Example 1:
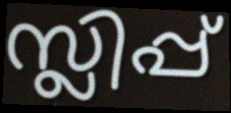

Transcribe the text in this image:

സ്ലിപ്പ്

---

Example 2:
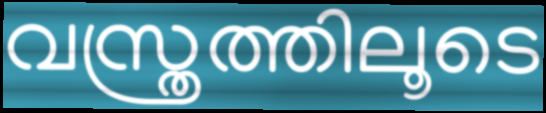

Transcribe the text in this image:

വസ്ത്രത്തിലൂടെ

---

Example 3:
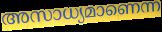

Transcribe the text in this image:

അസാധ്യമാണെന്ന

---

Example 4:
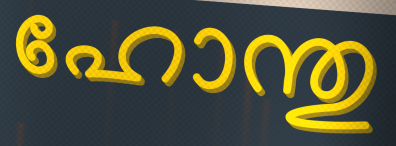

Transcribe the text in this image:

ഹോന്തു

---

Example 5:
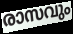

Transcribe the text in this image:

രാസവും